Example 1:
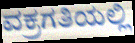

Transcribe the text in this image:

ವಕ್ರಗತಿಯಲ್ಲಿ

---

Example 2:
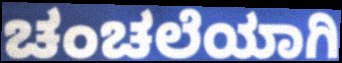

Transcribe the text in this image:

ಚಂಚಲೆಯಾಗಿ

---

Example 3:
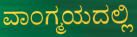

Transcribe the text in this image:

ವಾಂಗ್ಮಯದಲ್ಲಿ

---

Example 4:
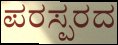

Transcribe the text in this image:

ಪರಸ್ಪರದ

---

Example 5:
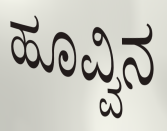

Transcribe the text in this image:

ಹೂವ್ವಿನ